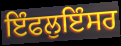
ਇੰਫਲੁਇੰਸਰ